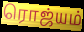
ரொஜ்யம்